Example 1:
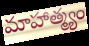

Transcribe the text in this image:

మాహాత్మ్యం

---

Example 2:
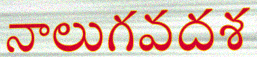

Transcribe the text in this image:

నాలుగవదశ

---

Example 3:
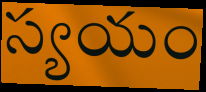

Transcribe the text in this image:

స్యయం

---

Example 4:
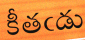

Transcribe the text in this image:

కీతఁడు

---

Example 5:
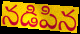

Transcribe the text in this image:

నడిపిన